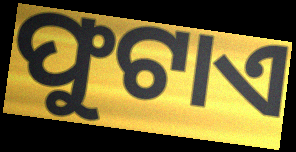
ଫୁଟାଏ